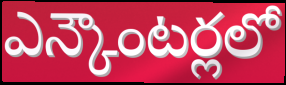
ఎన్కౌంటర్లలో